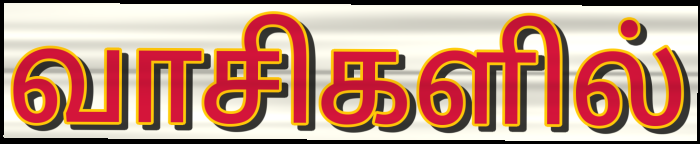
வாசிகளில்